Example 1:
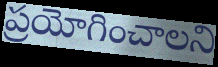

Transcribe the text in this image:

ప్రయోగించాలని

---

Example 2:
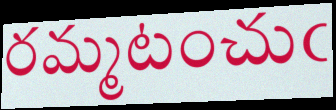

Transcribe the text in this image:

రమ్మటంచుఁ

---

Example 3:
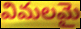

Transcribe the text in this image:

విమలమై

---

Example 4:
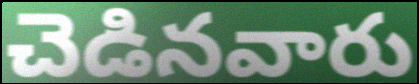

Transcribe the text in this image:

చెడినవారు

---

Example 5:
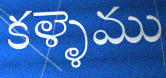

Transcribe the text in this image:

కళ్ళెము